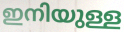
ഇനിയുള്ള